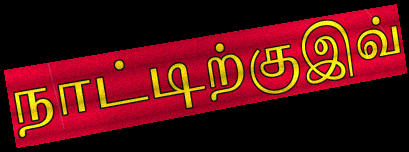
நாட்டிற்குஇவ்